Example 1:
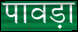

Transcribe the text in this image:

पावड़ा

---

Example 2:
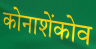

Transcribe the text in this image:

कोनाशेंकोव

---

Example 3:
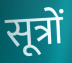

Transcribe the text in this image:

सूत्रों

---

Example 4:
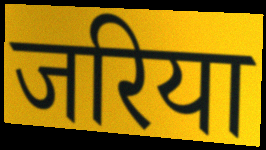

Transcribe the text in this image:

जरिया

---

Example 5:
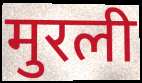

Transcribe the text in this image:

मुरली